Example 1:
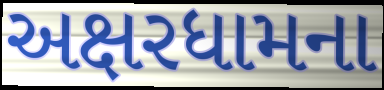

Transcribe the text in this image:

અક્ષરધામના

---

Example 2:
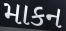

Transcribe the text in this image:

માકન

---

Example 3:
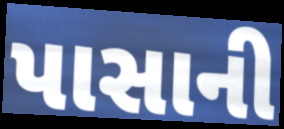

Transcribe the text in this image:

પાસાની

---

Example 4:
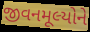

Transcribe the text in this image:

જીવનમૂલ્યોને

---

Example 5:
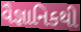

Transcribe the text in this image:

વૈજ્ઞાનિકથી